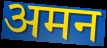
अमन